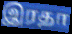
இரதா